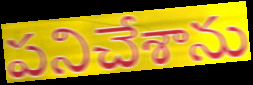
పనిచేశాను